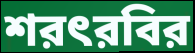
শরৎরবির